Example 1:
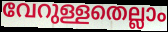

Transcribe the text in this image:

വേറുള്ളതെല്ലാം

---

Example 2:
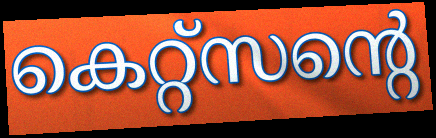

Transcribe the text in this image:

കെറ്റ്സന്റെ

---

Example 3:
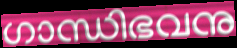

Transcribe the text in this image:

ഗാന്ധിഭവനു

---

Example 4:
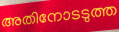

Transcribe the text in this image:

അതിനോടടുത്ത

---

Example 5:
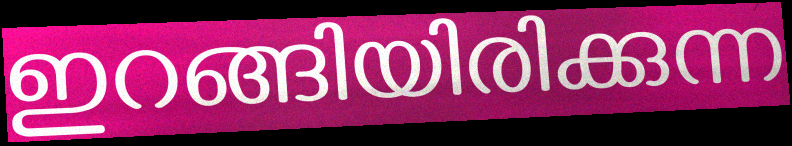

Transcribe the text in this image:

ഇറങ്ങിയിരിക്കുന്ന